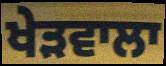
ਖੇੜਵਾਲਾ